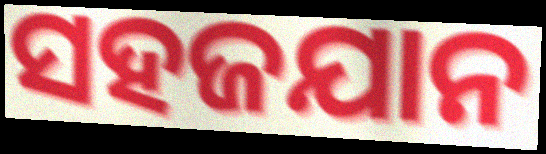
ସହଜଯାନ